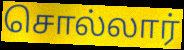
சொல்லார்